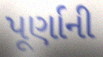
પૂર્ણાની